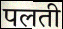
पलती